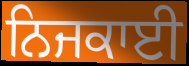
ਨਿਜਕਾਈ